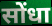
सोंधा